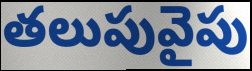
తలుపువైపు